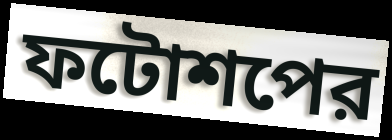
ফটোশপের